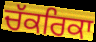
ਚੱਕਰਿਕਾ